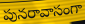
పునరావాసంగా